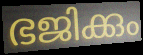
ഭജിക്കും